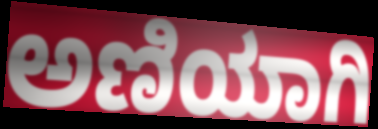
ಅಣಿಯಾಗಿ